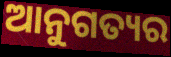
ଆନୁଗତ୍ୟର